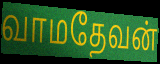
வாமதேவன்